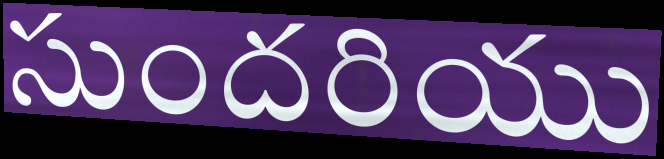
సుందరియు